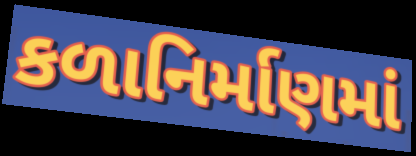
કળાનિર્માણમાં